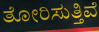
ತೋರಿಸುತ್ತಿವೆ